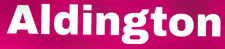
Aldington